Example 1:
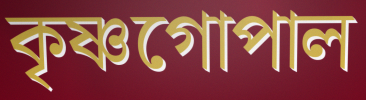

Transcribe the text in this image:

কৃষ্ণগোপাল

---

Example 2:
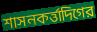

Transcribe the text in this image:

শাসনকর্ত্তাদিগের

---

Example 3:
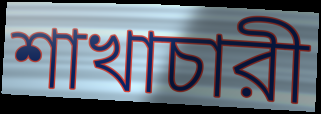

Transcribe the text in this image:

শাখাচারী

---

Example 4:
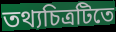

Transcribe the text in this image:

তথ্যচিত্রটিতে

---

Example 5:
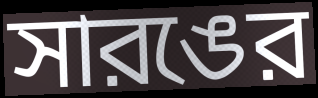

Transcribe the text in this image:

সারঙের